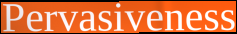
Pervasiveness